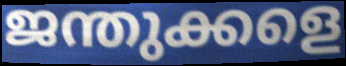
ജന്തുക്കളെ